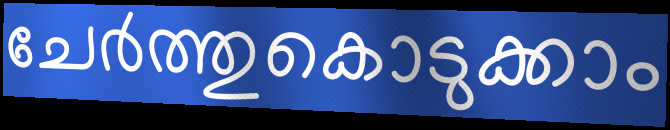
ചേർത്തുകൊടുക്കാം